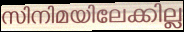
സിനിമയിലേക്കില്ല